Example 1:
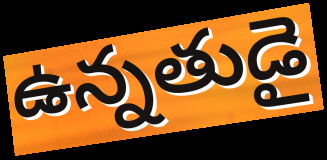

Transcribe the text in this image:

ఉన్నతుడై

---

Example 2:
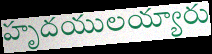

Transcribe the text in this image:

హృదయులయ్యారు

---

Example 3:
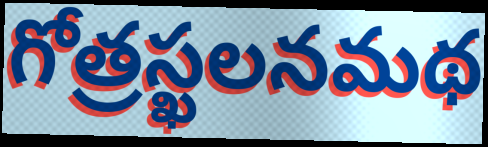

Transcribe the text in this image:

గోత్రస్ఖలనమథ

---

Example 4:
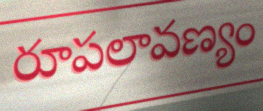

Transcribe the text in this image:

రూపలావణ్యం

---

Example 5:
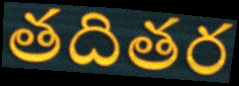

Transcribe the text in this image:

తదితర